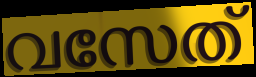
വസേത്